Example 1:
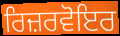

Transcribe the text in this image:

ਰਿਜ਼ਰਵੋਇਰ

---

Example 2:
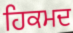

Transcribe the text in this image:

ਹਿਕਮਦ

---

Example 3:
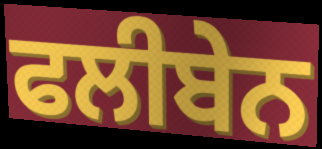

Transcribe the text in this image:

ਫਲੀਬੇਨ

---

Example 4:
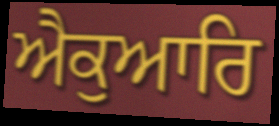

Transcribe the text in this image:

ਐਕੁਆਰਿ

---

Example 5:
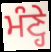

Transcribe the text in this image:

ਮੰਣ੍ਹੇ